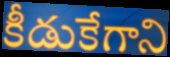
కీడుకేగాని